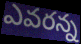
ఎవరన్న